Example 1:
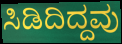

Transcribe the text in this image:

ಸಿಡಿದಿದ್ದವು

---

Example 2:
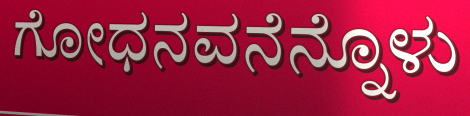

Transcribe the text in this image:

ಗೋಧನವನೆನ್ನೊಳು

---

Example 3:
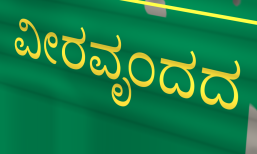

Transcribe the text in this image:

ವೀರವೃಂದದ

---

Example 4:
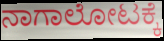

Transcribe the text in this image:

ನಾಗಾಲೋಟಕ್ಕೆ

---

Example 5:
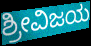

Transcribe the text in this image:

ಶ್ರೀವಿಜಯ